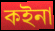
কইনা